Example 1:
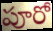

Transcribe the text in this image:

పూరో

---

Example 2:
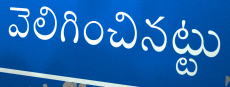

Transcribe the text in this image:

వెలిగించినట్టు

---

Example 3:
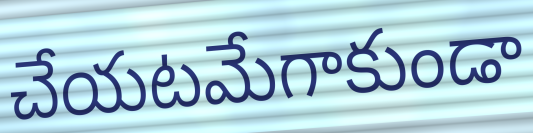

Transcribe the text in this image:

చేయటమేగాకుండా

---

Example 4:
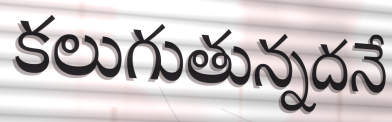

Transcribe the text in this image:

కలుగుతున్నదనే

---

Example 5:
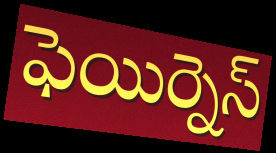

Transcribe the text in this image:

ఫెయిర్నెస్